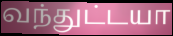
வந்துட்டயா